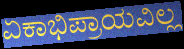
ಏಕಾಭಿಪ್ರಾಯವಿಲ್ಲ